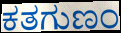
ಕತಗುಣಂ